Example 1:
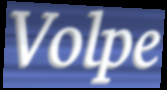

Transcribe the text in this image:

Volpe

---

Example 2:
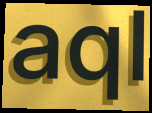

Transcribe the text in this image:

aql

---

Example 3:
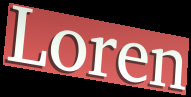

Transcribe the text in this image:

Loren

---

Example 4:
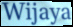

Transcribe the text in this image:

Wijaya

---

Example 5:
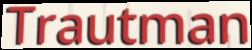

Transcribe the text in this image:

Trautman